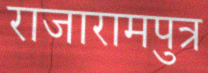
राजारामपुत्र